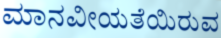
ಮಾನವೀಯತೆಯಿರುವ